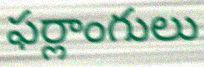
ఫర్లాంగులు